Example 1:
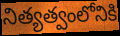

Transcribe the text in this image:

నిత్యత్వంలోనికి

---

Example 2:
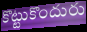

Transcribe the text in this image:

కొట్టుకొందురు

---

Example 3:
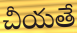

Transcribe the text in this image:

చీయతే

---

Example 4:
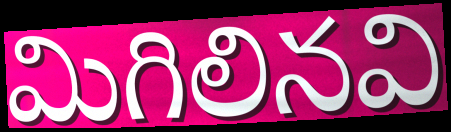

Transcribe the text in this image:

మిగిలినవి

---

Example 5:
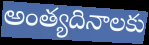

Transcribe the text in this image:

అంత్యదినాలకు